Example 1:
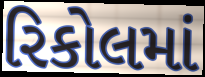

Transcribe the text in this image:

રિકોલમાં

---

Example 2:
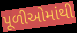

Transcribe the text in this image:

પૂળીઓમાંથી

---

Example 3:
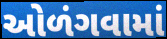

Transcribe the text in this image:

ઓળંગવામાં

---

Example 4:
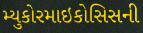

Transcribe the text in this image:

મ્યુકોરમાઇકોસિસની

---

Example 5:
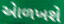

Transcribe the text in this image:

એાળખશે